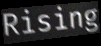
Rising